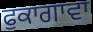
ਫੁਕਾਗਾਵਾ